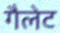
गैलेट